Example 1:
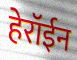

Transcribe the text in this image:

हेरॉईन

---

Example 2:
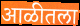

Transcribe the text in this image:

आळीतला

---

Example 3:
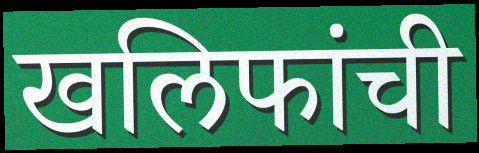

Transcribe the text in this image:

खलिफांची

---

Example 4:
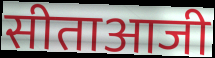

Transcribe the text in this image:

सीताआजी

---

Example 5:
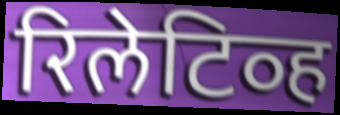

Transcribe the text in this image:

रिलेटिव्ह